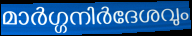
മാർഗ്ഗനിർദേശവും